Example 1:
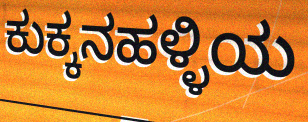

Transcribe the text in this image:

ಕುಕ್ಕನಹಳ್ಳಿಯ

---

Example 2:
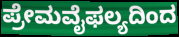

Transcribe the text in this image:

ಪ್ರೇಮವೈಫಲ್ಯದಿಂದ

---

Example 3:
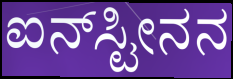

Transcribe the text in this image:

ಐನ್‌ಸ್ಟೀನನ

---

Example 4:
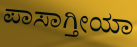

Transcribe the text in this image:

ಪಾಸಾಗ್ತೀಯಾ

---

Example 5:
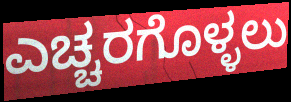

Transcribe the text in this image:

ಎಚ್ಚರಗೊಳ್ಳಲು